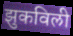
झुकविली